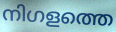
നിഗളത്തെ